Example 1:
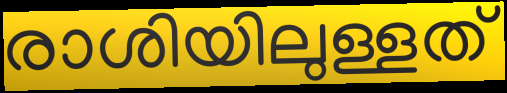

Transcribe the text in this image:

രാശിയിലുള്ളത്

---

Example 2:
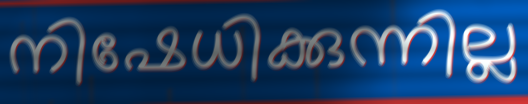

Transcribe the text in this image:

നിഷേധിക്കുന്നില്ല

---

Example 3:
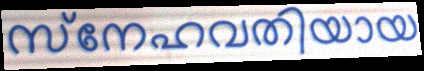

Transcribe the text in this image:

സ്‌നേഹവതിയായ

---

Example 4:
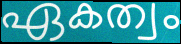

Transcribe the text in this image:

ഏകത്വം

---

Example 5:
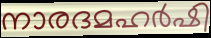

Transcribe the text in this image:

നാരദമഹർഷി